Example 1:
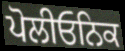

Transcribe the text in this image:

ਪੋਲੀਓਨਿਕ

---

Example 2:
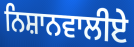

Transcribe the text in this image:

ਨਿਸ਼ਾਨਵਾਲੀਏ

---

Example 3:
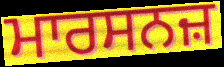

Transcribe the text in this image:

ਮਾਰਸਨਜ਼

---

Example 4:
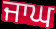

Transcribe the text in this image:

ਜਾਘ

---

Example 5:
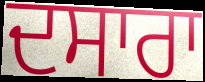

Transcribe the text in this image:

ਦਸਾਰਾ